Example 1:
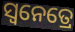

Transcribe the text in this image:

ସ୍ୱନେତ୍ରେ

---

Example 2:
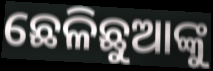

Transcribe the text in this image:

ଛେଳିଛୁଆଙ୍କୁ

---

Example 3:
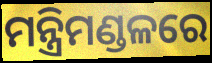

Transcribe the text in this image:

ମନ୍ତ୍ରିମଣ୍ଡଳରେ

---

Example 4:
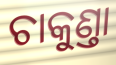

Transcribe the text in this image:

ଚାକୁଣ୍ତା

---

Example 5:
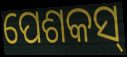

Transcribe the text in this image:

ପେଶକସ୍